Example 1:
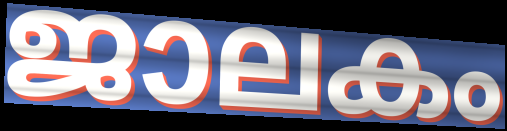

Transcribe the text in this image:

ജാലകം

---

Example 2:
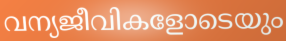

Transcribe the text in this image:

വന്യജീവികളോടെയും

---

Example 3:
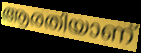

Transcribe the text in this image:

ആരതിയാണ്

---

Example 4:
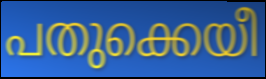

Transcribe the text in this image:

പതുക്കെയീ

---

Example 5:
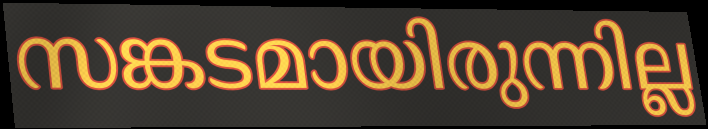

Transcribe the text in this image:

സങ്കടമായിരുന്നില്ല